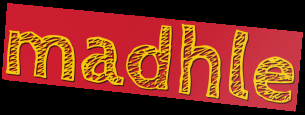
madhle